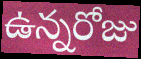
ఉన్నరోజు